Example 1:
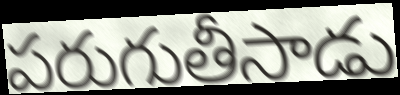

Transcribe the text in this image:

పరుగుతీసాడు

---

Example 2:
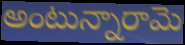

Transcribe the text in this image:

అంటున్నారామె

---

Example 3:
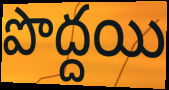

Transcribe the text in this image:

పొద్దయి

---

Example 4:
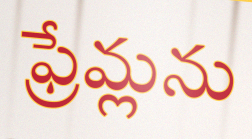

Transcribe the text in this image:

ఫ్రేమ్లను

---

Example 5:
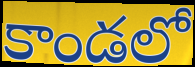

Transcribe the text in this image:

కాండలో